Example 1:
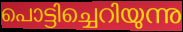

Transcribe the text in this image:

പൊട്ടിച്ചെറിയുന്നു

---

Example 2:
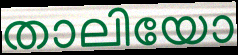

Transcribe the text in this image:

താലിയോ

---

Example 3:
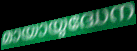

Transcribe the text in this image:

മായായുദ്ധേന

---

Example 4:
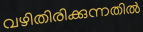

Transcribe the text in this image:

വഴിതിരിക്കുന്നതിൽ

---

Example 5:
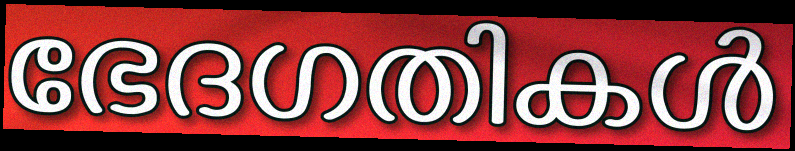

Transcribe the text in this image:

ഭേദഗതികൾ